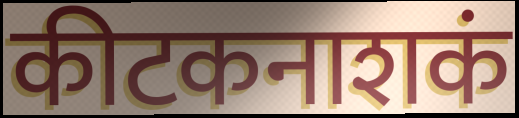
कीटकनाशकं